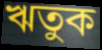
ঋতুক